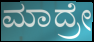
ಮಾದ್ರೇ